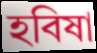
হবিষা